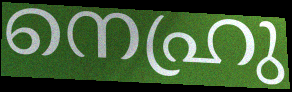
നെഹ്രു